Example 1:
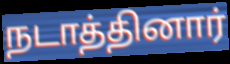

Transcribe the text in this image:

நடாத்தினார்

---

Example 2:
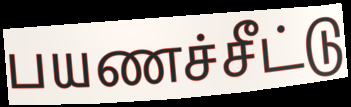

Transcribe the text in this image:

பயணச்சீட்டு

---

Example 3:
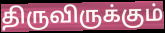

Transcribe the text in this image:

திருவிருக்கும்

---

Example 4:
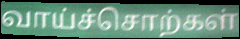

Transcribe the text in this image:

வாய்ச்சொற்கள்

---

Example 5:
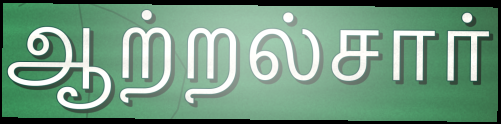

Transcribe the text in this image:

ஆற்றல்சார்